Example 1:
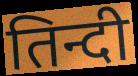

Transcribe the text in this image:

तिन्दी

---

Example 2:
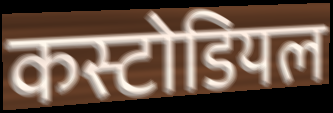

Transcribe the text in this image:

कस्टोडियल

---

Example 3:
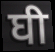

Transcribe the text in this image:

घी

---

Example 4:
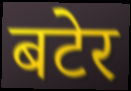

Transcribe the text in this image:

बटेर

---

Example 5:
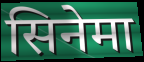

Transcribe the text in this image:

सिनेमा